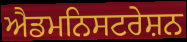
ਐਡਮਨਿਸਟਰੇਸ਼ਨ